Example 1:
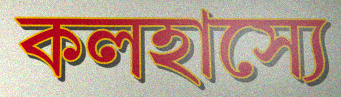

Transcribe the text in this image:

কলহাস্যে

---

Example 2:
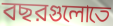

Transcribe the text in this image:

বছরগুলোতে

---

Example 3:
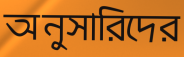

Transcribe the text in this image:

অনুসারিদের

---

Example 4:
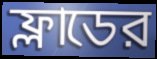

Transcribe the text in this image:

ফ্লাডের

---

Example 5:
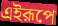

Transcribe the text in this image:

এইরূপে